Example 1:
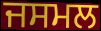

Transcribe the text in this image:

ਜਸਮਲ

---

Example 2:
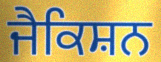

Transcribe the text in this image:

ਜੈਕਿਸ਼ਨ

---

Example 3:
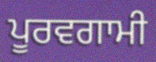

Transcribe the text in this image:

ਪੂਰਵਗਾਮੀ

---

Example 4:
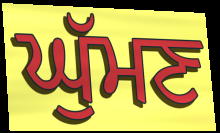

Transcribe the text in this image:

ਘੁੱਮਣ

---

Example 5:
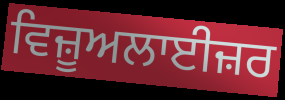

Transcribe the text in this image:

ਵਿਜ਼ੂਅਲਾਈਜ਼ਰ